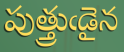
పుత్త్రుఁడైన